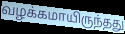
வழக்கமாயிருந்தது